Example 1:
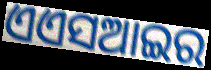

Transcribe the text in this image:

ଏଏସଆଇର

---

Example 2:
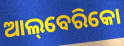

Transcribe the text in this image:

ଆଲ୍‌ବେରିକୋ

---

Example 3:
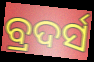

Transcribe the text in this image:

ବ୍ରଦର୍ସ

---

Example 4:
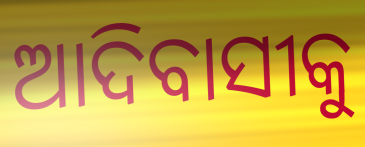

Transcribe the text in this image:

ଆଦିବାସୀକୁ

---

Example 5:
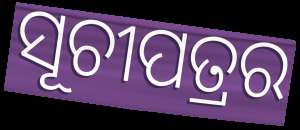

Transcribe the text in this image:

ସୂଚୀପତ୍ରର